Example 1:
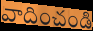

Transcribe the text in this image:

వాదించండి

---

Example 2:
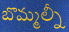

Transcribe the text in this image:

బొమ్మల్నీ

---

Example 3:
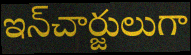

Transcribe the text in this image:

ఇన్‌చార్జులుగా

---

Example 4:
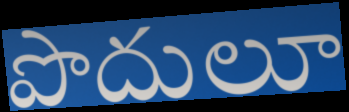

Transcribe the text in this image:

పొదులూ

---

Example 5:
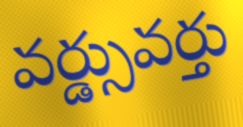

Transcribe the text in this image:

వర్డ్సువర్తు